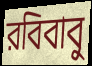
রবিবাবু